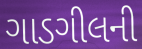
ગાડગીલની